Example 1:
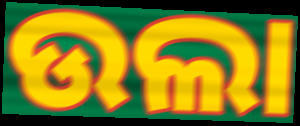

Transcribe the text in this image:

ଉଲା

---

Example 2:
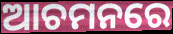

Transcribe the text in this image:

ଆଚମନରେ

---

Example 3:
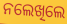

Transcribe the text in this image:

ନଲେଖିଲେ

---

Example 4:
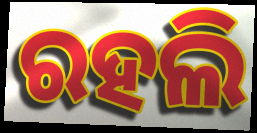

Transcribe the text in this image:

ରହଲି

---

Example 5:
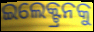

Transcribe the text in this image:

ଇଲେକ୍ଟ୍ରନକୁ